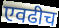
एवढीच